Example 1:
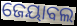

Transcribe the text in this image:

ଜେୟାବଲ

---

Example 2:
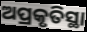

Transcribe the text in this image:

ଅପ୍ରକୃତିସ୍ଥା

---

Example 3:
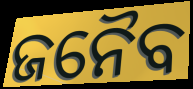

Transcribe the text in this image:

ଜନୈବ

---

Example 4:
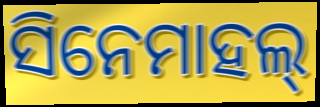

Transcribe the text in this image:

ସିନେମାହଲ୍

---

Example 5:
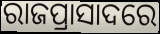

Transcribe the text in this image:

ରାଜପ୍ରାସାଦରେ